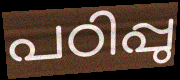
പഠിപ്പു